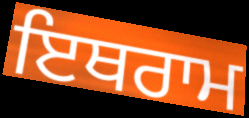
ਇਥਰਾਮ